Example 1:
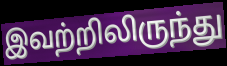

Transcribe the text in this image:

இவற்றிலிருந்து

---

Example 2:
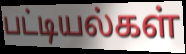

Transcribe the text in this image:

பட்டியல்கள்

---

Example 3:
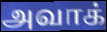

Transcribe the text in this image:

அவாக்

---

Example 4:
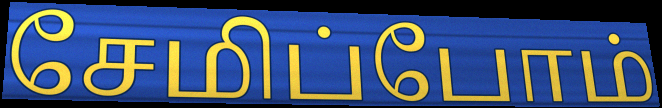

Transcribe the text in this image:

சேமிப்போம்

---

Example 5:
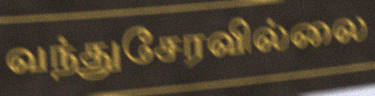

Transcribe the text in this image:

வந்துசேரவில்லை